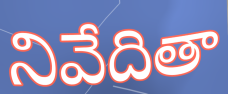
నివేదితా